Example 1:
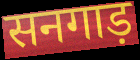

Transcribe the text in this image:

सनगाड़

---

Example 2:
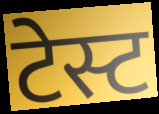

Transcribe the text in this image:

टेस्‍ट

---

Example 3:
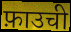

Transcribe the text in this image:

फ़ाउची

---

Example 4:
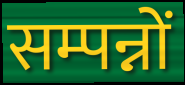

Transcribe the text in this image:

सम्पन्नों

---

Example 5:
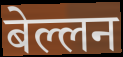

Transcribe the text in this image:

बेल्लन